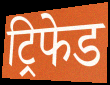
ट्रिफेड